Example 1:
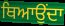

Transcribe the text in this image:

ਥਿਆਉਂਦਾ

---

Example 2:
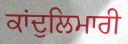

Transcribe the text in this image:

ਕਾਂਦੁਲਿਮਾਰੀ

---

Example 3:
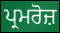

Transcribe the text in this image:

ਪ੍ਰਮਰੋਜ਼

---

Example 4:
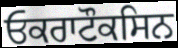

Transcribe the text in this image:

ਓਕਰਾਟੌਕਸਿਨ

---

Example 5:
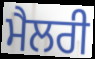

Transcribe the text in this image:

ਮੈਲਰੀ